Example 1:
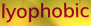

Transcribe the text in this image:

lyophobic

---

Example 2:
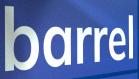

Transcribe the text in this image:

barrel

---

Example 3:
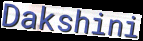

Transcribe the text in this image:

Dakshini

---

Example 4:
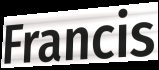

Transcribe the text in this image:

Francis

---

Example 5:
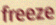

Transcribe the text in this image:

freeze